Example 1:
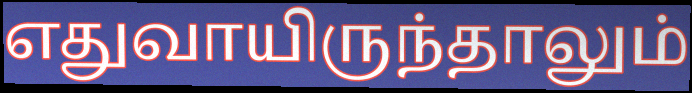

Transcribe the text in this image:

எதுவாயிருந்தாலும்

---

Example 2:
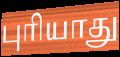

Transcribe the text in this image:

புரியாது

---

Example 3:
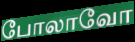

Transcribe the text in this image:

போலாவோ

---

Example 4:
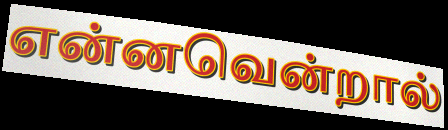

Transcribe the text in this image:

என்னவென்றால்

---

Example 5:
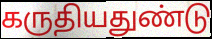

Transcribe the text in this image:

கருதியதுண்டு